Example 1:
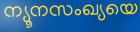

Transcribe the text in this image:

ന്യൂനസംഖ്യയെ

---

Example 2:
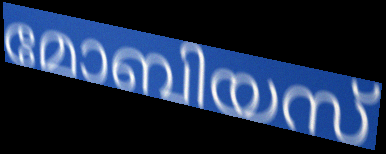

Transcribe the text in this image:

മോബിയസ്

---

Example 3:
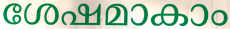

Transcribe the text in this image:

ശേഷമാകാം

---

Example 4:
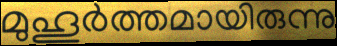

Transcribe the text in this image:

മുഹൂർത്തമായിരുന്നു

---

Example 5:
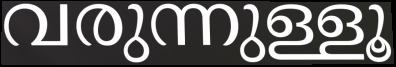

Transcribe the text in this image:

വരുന്നുള്ളൂ